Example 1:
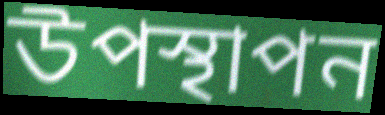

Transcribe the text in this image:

উপস্থাপন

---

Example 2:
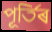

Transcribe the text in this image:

পূৰ্তিৰ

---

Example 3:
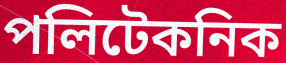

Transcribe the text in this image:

পলিটেকনিক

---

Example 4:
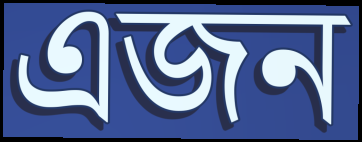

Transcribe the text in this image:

এজন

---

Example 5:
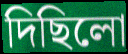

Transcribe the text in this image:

দিছিলো